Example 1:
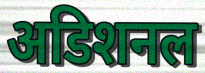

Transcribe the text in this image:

अडिशनल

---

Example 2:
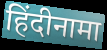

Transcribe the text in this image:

हिंदीनामा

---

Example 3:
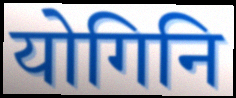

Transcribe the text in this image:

योगिनि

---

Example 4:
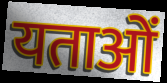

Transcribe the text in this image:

यताओं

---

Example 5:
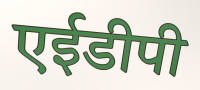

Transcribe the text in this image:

एईडीपी